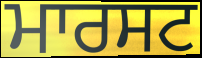
ਮਾਰਸਟ